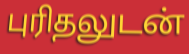
புரிதலுடன்